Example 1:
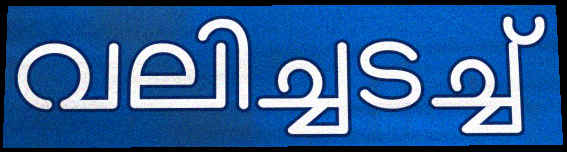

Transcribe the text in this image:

വലിച്ചടച്ച്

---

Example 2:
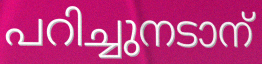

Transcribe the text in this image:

പറിച്ചുനടാന്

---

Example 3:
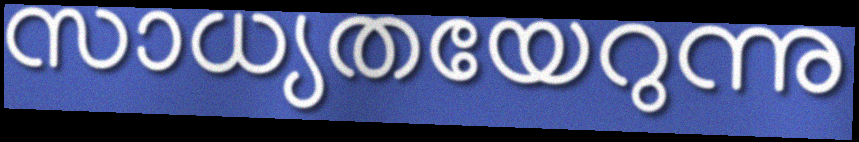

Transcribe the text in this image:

സാധ്യതയേറുന്നു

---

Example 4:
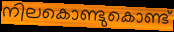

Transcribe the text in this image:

നിലകൊണ്ടുകൊണ്ട്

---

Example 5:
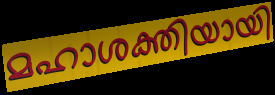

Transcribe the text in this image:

മഹാശക്തിയായി